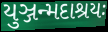
યુઞ્જન્મદાશ્રયઃ